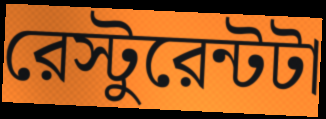
রেস্টুরেন্টটা